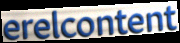
erelcontent